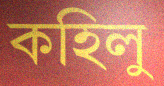
কহিলু